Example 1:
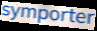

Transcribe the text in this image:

symporter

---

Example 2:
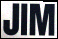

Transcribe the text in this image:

JIM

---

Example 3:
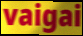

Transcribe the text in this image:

vaigai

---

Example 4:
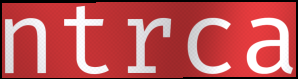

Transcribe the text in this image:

ntrca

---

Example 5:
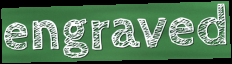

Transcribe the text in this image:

engraved